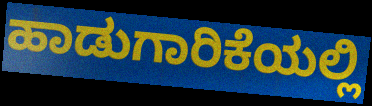
ಹಾಡುಗಾರಿಕೆಯಲ್ಲಿ